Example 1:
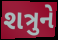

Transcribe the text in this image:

શત્રુને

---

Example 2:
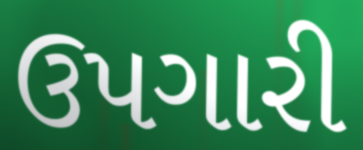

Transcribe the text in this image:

ઉપગારી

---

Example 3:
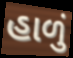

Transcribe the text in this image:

હાળું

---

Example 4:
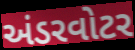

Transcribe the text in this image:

અંડરવોટર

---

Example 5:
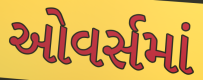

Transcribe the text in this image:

ઓવર્સમાં